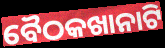
ବୈଠକଖାନାଟି